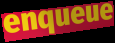
enqueue